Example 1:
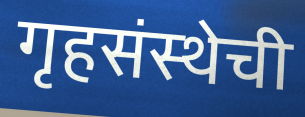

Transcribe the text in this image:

गृहसंस्थेची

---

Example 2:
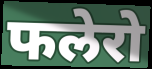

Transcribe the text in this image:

फलेरो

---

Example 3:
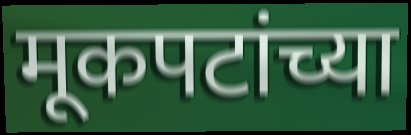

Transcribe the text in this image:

मूकपटांच्या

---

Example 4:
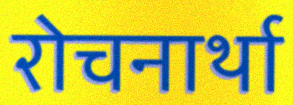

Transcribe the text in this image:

रोचनार्था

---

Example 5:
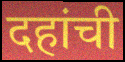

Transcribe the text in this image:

दहांची